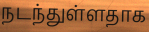
நடந்துள்ளதாக